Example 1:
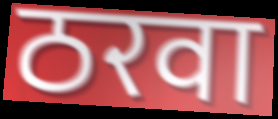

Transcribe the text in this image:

ठरवा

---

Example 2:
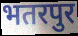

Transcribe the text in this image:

भतरपुर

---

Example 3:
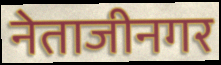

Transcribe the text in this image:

नेताजीनगर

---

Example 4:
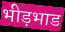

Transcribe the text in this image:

भीड़भाड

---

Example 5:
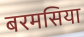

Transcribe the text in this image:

बरमसिया